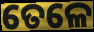
ତେଳେ